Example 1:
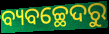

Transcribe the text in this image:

ବ୍ୟବଚ୍ଛେଦରୁ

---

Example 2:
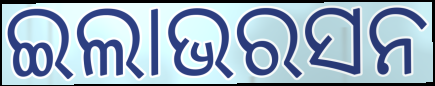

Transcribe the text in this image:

ଇଲାଭରସନ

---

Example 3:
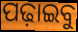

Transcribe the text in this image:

ପଢ଼ାଇବୁ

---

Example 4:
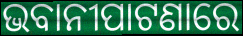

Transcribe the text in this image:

ଭବାନୀପାଟଣାରେ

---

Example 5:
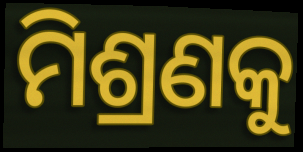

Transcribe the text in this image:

ମିଶ୍ରଣକୁ